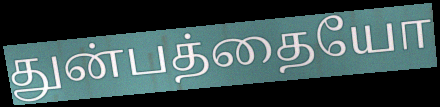
துன்பத்தையோ